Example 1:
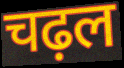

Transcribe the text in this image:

चढ़ल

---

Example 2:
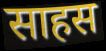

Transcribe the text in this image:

साहस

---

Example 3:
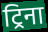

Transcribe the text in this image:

ट्रिना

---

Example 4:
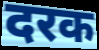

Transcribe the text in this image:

दरक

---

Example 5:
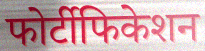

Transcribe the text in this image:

फोर्टीफिकेशन